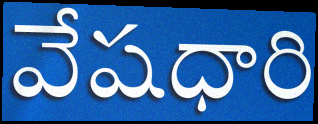
వేషధారి